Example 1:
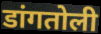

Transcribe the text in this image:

डांगतोली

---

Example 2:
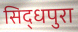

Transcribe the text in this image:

सिद्धपुरा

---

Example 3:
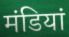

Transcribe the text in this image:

मंडियां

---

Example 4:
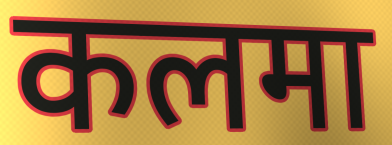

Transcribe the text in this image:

कलमा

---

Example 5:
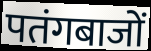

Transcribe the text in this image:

पतंगबाजों